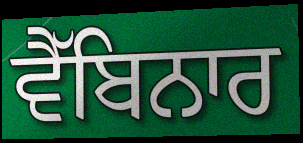
ਵੈੱਬਿਨਾਰ